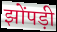
झोंपड़ी